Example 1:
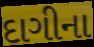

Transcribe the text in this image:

દાગીના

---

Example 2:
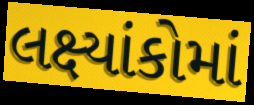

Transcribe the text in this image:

લક્ષ્યાંકોમાં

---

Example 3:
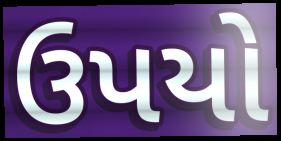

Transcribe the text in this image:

ઉપયો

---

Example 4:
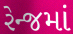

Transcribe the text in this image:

રેન્જમાં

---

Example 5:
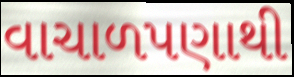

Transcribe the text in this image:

વાચાળપણાથી